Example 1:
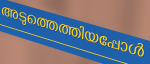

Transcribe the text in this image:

അടുത്തെത്തിയപ്പോൾ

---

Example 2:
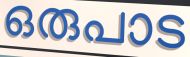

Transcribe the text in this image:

ഒരുപാട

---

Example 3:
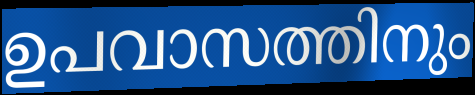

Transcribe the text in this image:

ഉപവാസത്തിനും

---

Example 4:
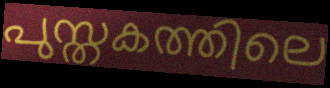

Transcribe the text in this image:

പുസ്തകത്തിലെ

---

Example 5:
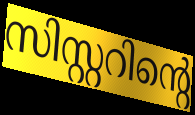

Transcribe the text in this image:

സിസ്റ്ററിന്റെ